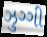
ઝુગ્ગી